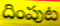
దింపుట